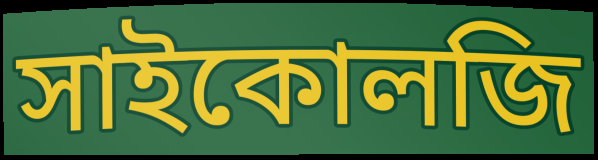
সাইকোলজি